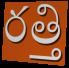
రత్తి